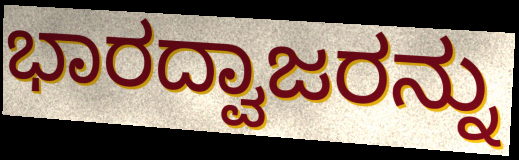
ಭಾರದ್ವಾಜರನ್ನು